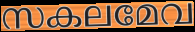
സകലമേവ